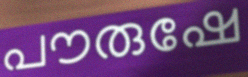
പൗരുഷേ